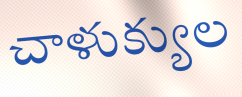
చాళుక్యుల